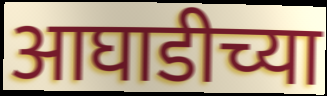
आघाडीच्‍या